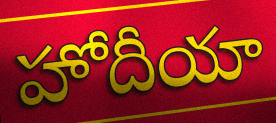
హోదీయా